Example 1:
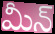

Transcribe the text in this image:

మీన్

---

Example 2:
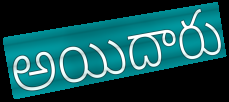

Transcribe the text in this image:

అయిదారు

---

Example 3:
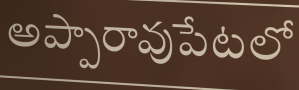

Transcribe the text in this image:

అప్పారావుపేటలో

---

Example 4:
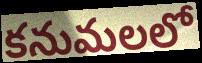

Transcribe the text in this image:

కనుమలలో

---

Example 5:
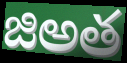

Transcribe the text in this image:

జిఅత